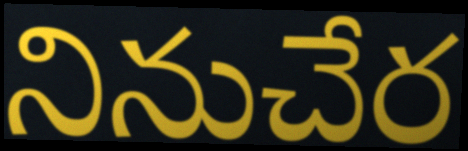
నినుచేర